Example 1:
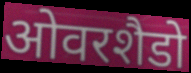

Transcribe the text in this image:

ओवरशैडो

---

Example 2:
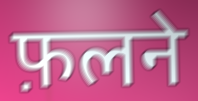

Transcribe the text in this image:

फ़लने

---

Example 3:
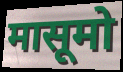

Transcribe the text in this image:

मासूमो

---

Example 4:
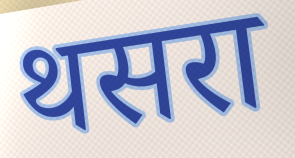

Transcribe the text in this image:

थसरा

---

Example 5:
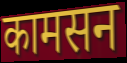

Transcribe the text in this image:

कामसन